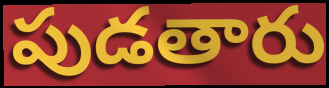
పుడతారు